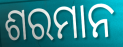
ଶରମାନ